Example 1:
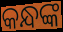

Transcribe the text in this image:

କନ୍ଧଙ୍କ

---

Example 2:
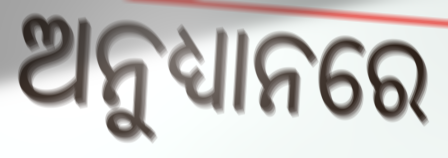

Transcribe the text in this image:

ଅନୁଧ୍ୟାନରେ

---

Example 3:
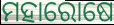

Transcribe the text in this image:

ମହାରୋଷେ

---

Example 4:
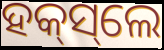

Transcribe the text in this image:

ହକ୍‌ସ୍‌ଲେ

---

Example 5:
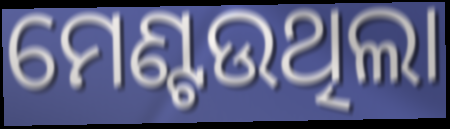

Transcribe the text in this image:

ମେଣ୍ଟଉଥିଲା